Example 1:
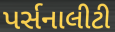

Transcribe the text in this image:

પર્સનાલીટી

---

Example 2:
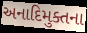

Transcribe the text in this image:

અનાદિમુક્તના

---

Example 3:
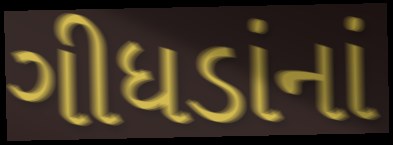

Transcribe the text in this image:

ગીધડાંનાં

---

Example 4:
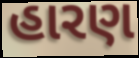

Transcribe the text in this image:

હારણ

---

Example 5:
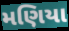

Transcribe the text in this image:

મણિયા